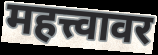
महत्त्वावर